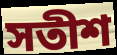
সতীশ